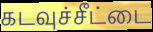
கடவுச்சீட்டை